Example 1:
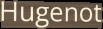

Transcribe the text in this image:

Hugenot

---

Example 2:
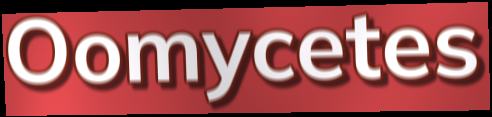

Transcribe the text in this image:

Oomycetes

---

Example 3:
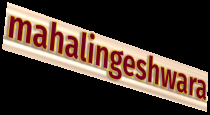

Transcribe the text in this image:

mahalingeshwara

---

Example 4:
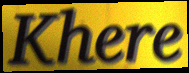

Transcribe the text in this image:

Khere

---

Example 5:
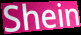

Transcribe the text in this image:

Shein